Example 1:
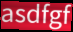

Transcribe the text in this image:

asdfgf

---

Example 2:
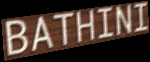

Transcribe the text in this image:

BATHINI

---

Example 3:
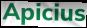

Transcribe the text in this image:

Apicius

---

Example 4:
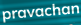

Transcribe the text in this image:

pravachan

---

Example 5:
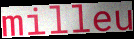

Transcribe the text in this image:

milleu